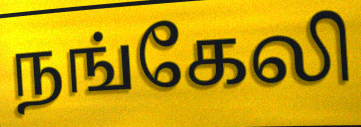
நங்கேலி